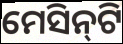
ମେସିନ୍‌ଟି